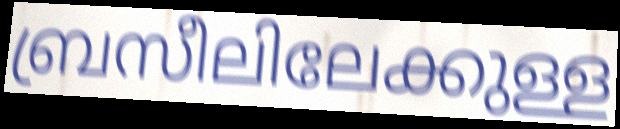
ബ്രസീലിലേക്കുള്ള